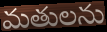
మతులను